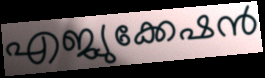
എജ്യുക്കേഷൻ